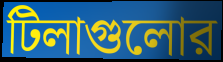
টিলাগুলোর